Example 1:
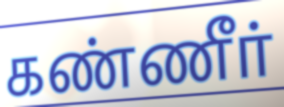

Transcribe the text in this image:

கண்ணீர்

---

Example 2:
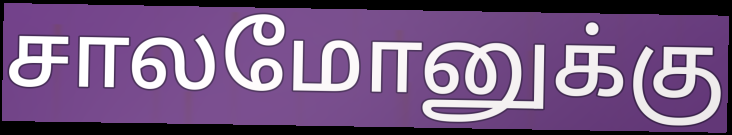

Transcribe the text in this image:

சாலமோனுக்கு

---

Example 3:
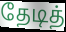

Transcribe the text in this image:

தேடித்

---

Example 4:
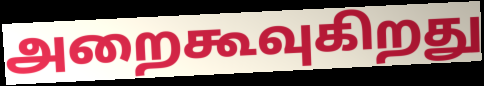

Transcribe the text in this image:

அறைகூவுகிறது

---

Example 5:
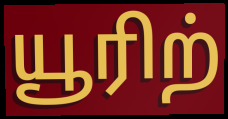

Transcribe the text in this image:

யூரிற்